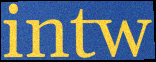
intw